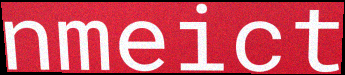
nmeict